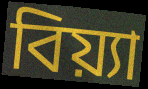
বিয়্যা